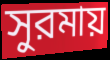
সুরমায়